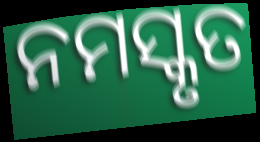
ନମସ୍କୃତ